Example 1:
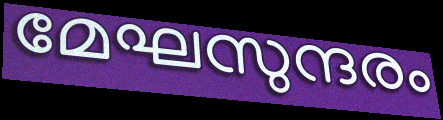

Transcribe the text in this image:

മേഘസുന്ദരം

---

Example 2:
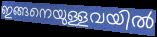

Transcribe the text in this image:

ഇങ്ങനെയുള്ളവയിൽ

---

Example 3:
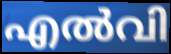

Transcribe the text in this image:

എൽവി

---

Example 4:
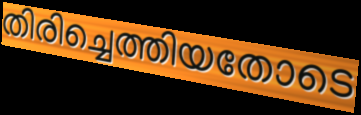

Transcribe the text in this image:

തിരിച്ചെത്തിയതോടെ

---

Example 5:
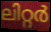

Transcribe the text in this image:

ലിറ്റർ